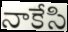
నాకేసి